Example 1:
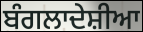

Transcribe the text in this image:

ਬੰਗਲਾਦੇਸ਼ੀਆ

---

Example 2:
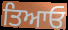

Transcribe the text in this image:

ਤਿਆਓ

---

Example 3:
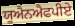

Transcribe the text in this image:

ਯੂਐਨਐਫਪੀਏ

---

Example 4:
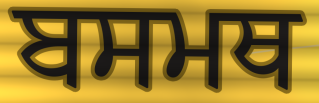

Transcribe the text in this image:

ਬਸਮਥ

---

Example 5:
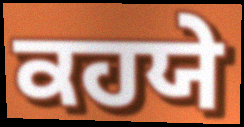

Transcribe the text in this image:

ਕਹਯੇ